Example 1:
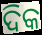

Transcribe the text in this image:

ଦିକ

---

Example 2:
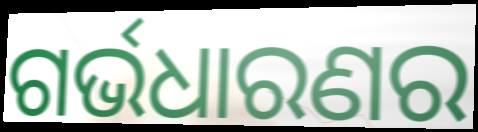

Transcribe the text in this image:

ଗର୍ଭଧାରଣର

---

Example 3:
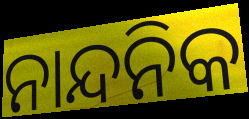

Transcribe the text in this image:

ନାନ୍ଦନିକ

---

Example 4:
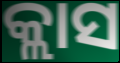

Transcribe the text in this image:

କ୍ଲାସ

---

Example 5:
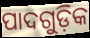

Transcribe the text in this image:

ପାଦଗୁଡ଼ିକ